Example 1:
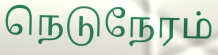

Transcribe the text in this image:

நெடுநேரம்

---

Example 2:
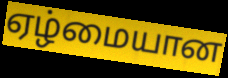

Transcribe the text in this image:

ஏழ்மையான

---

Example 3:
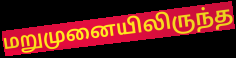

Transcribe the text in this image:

மறுமுனையிலிருந்த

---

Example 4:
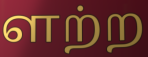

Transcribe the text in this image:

ளற்ற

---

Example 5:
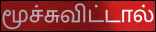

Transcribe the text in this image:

மூச்சுவிட்டால்